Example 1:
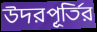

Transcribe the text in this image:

উদরপূর্তির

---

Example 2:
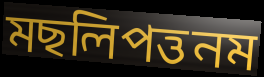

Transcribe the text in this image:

মছলিপত্তনম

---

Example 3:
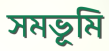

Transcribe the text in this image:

সমভূমি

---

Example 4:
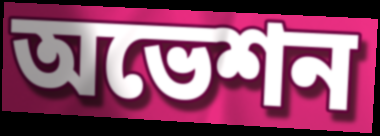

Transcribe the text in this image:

অভেশন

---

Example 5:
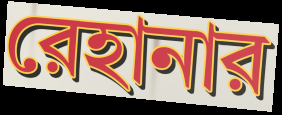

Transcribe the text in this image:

রেহানার